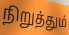
நிறுத்தும்